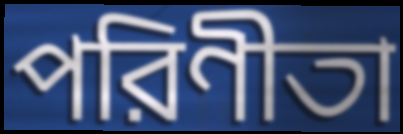
পরিণীতা